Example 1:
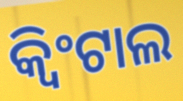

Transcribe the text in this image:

କ୍ୱିଂଟାଲ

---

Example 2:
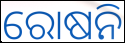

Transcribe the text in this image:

ରୋଷନି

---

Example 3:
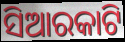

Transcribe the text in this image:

ସିଆରକାଟି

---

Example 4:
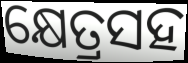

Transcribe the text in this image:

କ୍ଷେତ୍ରସହ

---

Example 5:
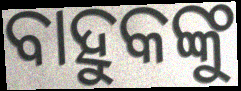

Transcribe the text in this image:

ବାହୁକଙ୍କୁ